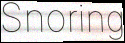
Snoring